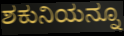
ಶಕುನಿಯನ್ನೂ